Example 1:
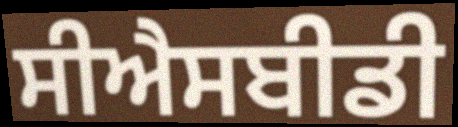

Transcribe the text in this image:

ਸੀਐਸਬੀਡੀ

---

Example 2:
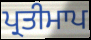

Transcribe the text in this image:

ਪ੍ਰਤੀਮਾਪ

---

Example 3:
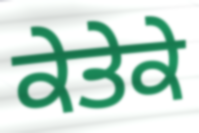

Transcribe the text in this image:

ਕੇਤੇਕੇ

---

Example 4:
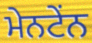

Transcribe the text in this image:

ਮੇਨਟੇਂਨ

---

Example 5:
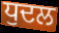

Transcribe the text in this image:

ਧੁਦਲ